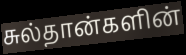
சுல்தான்களின்